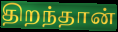
திறந்தான்